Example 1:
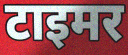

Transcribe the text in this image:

टाइमर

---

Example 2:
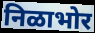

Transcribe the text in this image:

निळाभोर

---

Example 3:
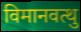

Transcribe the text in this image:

विमानवत्थु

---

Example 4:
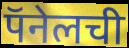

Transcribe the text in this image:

पॅनेलची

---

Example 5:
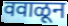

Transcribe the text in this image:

ववाळून